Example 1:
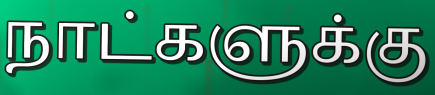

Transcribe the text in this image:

நாட்களுக்கு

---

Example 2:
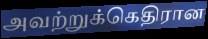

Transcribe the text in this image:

அவற்றுக்கெதிரான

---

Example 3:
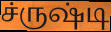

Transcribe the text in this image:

ச்ருஷ்டி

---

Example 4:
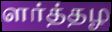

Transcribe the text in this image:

ளர்த்தழ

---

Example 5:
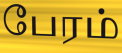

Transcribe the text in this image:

பேரம்